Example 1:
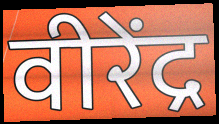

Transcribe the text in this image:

वीरेंद्र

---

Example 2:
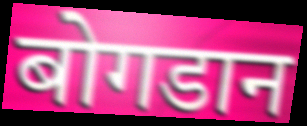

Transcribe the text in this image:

बोगडान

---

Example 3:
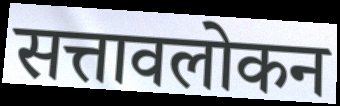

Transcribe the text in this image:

सत्तावलोकन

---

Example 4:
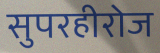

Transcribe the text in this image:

सुपरहीरोज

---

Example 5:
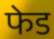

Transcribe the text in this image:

फेड